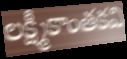
లక్ష్మీకాంతకవి